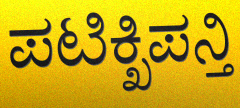
ಪಟಿಕ್ಖಿಪನ್ತಿ